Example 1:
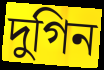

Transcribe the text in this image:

দুগিন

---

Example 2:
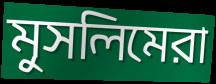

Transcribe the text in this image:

মুসলিমেরা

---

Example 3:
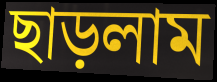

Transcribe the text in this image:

ছাড়লাম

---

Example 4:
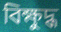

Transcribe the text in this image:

বিক্ষুদ্ধ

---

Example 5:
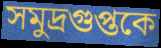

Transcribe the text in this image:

সমুদ্রগুপ্তকে